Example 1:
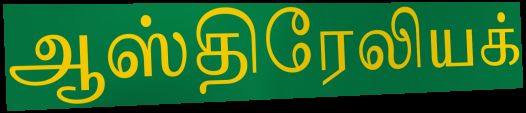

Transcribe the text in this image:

ஆஸ்திரேலியக்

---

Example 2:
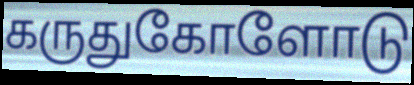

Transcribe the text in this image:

கருதுகோளோடு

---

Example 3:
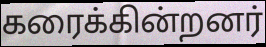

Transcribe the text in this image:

கரைக்கின்றனர்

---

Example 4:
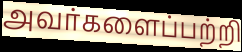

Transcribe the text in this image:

அவர்களைப்பற்றி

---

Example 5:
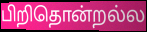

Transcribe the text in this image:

பிறிதொன்றல்ல